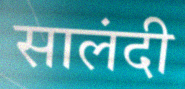
सालंदी